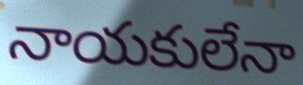
నాయకులేనా